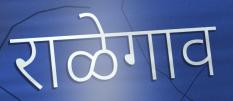
राळेगाव